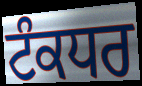
ਟੰਕਧਰ